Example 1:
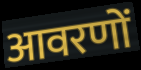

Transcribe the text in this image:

आवरणों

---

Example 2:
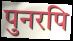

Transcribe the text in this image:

पुनरपि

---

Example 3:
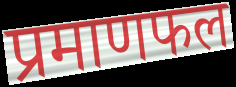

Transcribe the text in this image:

प्रमाणफल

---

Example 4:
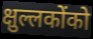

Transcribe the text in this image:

क्षुल्लकोंको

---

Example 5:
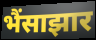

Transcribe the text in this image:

भैंसाझार